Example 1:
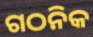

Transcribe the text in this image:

ଗଠନିକ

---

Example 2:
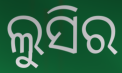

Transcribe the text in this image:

ଲୁସିର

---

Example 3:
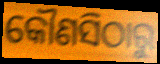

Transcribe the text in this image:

କୌଣସିଠାରୁ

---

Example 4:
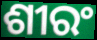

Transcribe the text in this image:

ଶୀରଂ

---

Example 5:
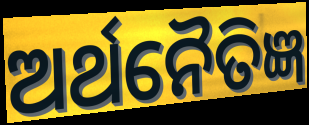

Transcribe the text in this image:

ଅର୍ଥନୈତିଜ୍ଞ